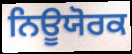
ਨਿਊਯੋਰਕ